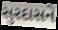
સુરદાસને